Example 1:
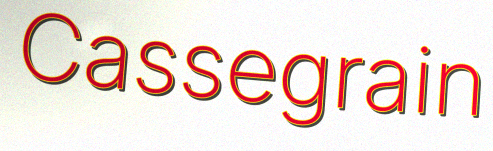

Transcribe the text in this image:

Cassegrain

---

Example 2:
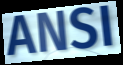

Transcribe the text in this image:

ANSI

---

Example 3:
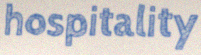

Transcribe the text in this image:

hospitality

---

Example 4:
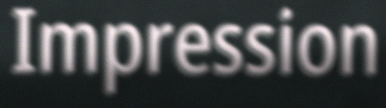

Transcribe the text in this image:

Impression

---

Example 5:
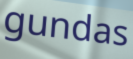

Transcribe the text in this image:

gundas